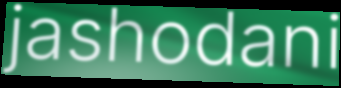
jashodani